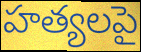
హత్యలపై